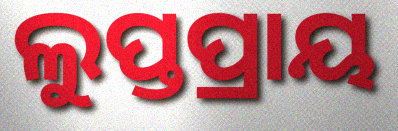
ଲୁପ୍ତପ୍ରାୟ